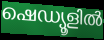
ഷെഡ്യൂളിൽ